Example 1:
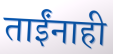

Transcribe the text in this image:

ताईंनाही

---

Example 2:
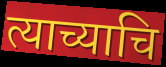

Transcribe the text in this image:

त्याच्याचि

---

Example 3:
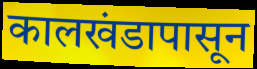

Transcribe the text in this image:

कालखंडापासून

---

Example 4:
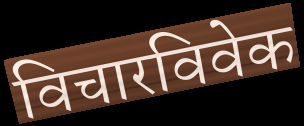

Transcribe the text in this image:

विचारविवेक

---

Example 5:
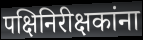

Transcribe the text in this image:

पक्षिनिरीक्षकांना